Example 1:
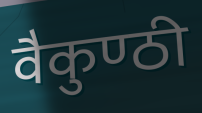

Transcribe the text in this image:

वैकुण्ठी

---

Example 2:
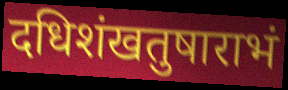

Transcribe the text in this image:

दधिशंखतुषाराभं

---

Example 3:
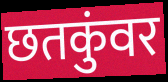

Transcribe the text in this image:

छतकुंवर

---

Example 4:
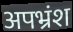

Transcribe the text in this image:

अपभ्रंश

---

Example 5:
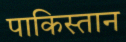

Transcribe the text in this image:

पाकिस्‍तान